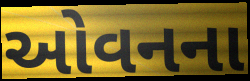
ઓવનના